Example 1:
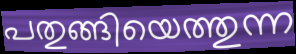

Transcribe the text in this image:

പതുങ്ങിയെത്തുന്ന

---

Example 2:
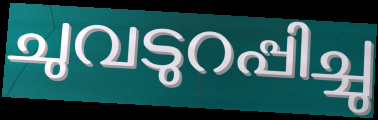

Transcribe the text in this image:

ചുവടുറപ്പിച്ചു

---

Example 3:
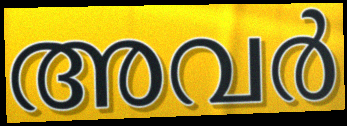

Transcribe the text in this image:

അവർ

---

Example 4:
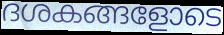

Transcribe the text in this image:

ദശകങ്ങളോടെ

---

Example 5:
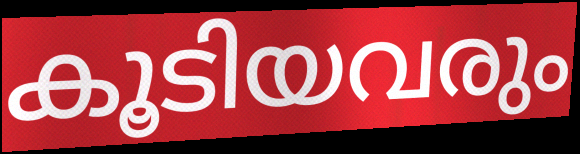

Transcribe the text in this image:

കൂടിയവരും